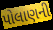
પોલાણની